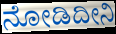
ನೋಡಿದೀನಿ